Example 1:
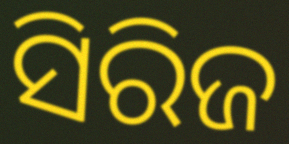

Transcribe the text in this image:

ସିରିଜ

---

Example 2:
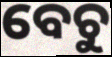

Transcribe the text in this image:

ବେଚୁ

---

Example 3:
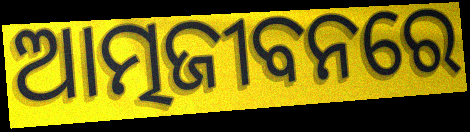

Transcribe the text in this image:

ଆତ୍ମଜୀବନରେ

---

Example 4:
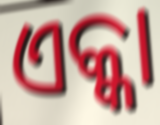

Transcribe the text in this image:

ଏକ୍କା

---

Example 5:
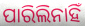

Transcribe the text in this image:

ପାରିଲିନାହିଁ